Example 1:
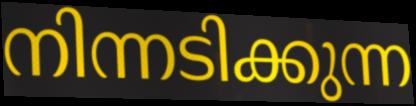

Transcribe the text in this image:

നിന്നടിക്കുന്ന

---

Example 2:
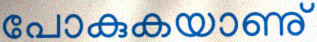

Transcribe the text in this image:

പോകുകയാണു്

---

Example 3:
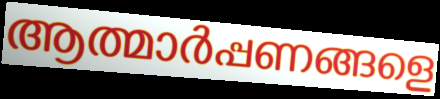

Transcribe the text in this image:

ആത്മാർപ്പണങ്ങളെ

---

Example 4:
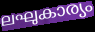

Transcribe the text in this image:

ലഘുകാര്യം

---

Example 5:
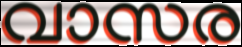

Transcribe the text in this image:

വാസര